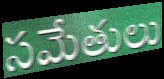
సమేతులు